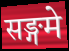
सङ्गमे